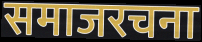
समाजरचना